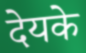
देयके